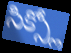
సిక్స్లో